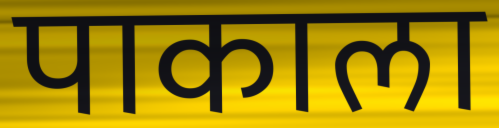
पाकाला